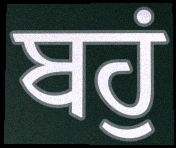
ਬਹੁਂ